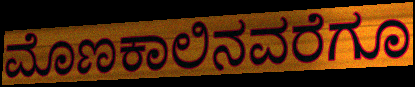
ಮೊಣಕಾಲಿನವರೆಗೂ